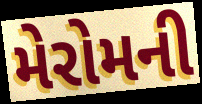
મેરોમની